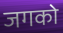
जगको